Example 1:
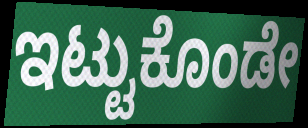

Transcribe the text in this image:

ಇಟ್ಟುಕೊಂಡೇ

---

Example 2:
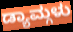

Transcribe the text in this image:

ಡ್ಯಾಮ್ಗಳು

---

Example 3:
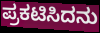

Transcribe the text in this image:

ಪ್ರಕಟಿಸಿದನು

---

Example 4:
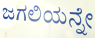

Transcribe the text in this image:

ಜಗಲಿಯನ್ನೇ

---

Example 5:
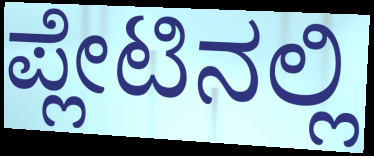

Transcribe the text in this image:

ಪ್ಲೇಟಿನಲ್ಲಿ